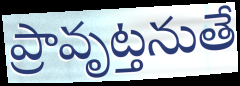
ప్రావృట్తనుతే